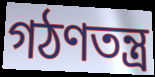
গঠণতন্ত্র